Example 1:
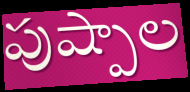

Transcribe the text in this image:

పుష్పాల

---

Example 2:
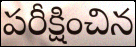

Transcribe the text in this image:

పరీక్షించిన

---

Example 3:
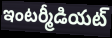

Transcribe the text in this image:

ఇంటర్మీడియట్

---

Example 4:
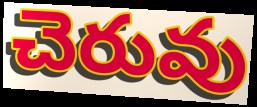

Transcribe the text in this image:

చెరువు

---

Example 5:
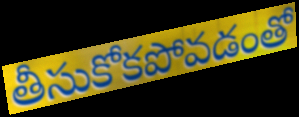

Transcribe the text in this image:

తీసుకోకపోవడంతో